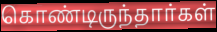
கொண்டிருந்தார்கள்